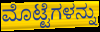
ಮೊಟ್ಟೆಗಳನ್ನು